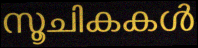
സൂചികകൾ